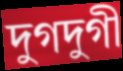
দুগদুগী